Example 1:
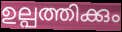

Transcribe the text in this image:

ഉല്പത്തിക്കും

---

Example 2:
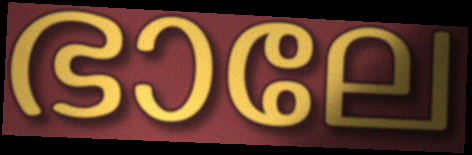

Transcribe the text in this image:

ഭാലേ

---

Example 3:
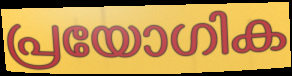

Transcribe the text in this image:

പ്രയോഗിക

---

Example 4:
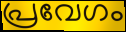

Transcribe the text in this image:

പ്രവേഗം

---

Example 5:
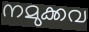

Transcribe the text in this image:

നമുക്കവ